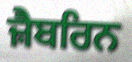
ਜ਼ੈਬਰਿਨ